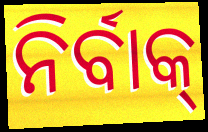
ନିର୍ବାକ୍